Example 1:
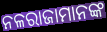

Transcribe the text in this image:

ନଳରାଜାମାନଙ୍କ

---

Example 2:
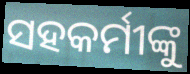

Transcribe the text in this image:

ସହକର୍ମୀଙ୍କୁ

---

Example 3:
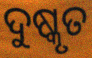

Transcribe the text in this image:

ଦୁଷ୍କୃତ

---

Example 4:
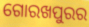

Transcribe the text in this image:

ଗୋରଖପୁରର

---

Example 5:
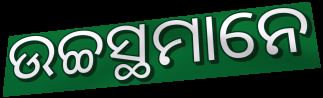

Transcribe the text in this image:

ଉଚ୍ଚସ୍ଥମାନେ